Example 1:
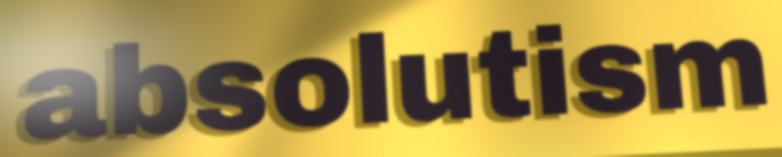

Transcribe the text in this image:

absolutism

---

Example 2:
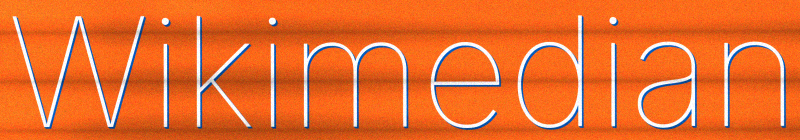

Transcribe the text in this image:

Wikimedian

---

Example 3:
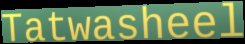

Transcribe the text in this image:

Tatwasheel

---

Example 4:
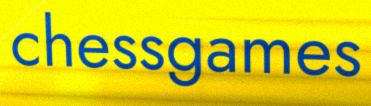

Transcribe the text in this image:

chessgames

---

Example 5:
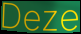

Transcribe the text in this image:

Deze